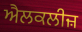
ਐਲਕਲੀਜ਼